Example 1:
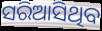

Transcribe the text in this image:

ସରିଆସିଥିବ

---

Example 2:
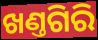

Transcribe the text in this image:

ଖଣ୍ତଗିରି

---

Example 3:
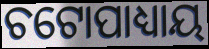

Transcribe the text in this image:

ଚଟୋପାଧ୍ୟାୟ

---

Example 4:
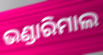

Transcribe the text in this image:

ଭଣ୍ଡାରିମାଲ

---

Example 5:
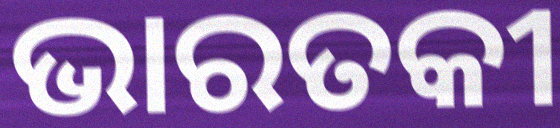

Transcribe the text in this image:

ଭାରତକୀ